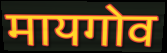
मायगोव